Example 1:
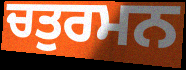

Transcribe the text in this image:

ਚਤੁਰਮਨ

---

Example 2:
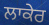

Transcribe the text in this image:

ਲਾਕੇਰ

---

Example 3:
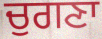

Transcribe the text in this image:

ਚੁਗਣਾ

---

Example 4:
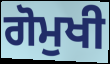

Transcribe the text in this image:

ਗੋਮੁਖੀ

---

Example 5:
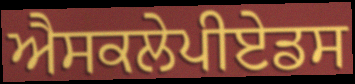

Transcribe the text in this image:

ਐਸਕਲੇਪੀਏਡਸ